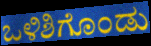
ಒಳಿಶಿಗೊಂಡು